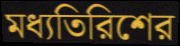
মধ্যতিরিশের